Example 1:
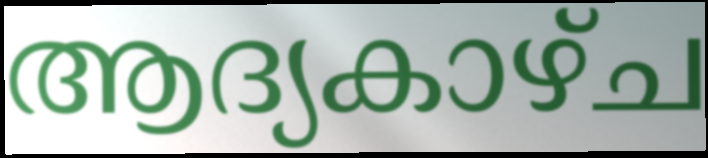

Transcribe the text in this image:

ആദ്യകാഴ്ച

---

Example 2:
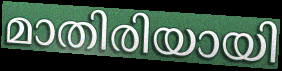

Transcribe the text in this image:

മാതിരിയായി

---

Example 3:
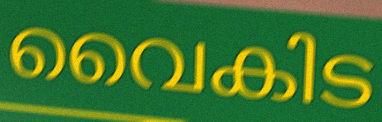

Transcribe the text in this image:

വൈകിട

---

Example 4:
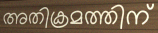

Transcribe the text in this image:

അതിക്രമത്തിന്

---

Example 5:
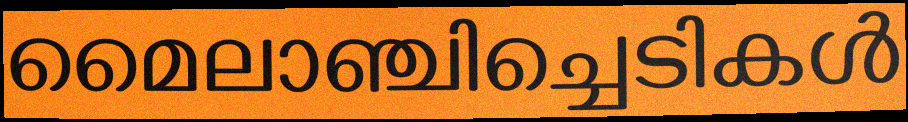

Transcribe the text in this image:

മൈലാഞ്ചിച്ചെടികൾ